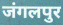
जंगलपुर